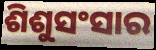
ଶିଶୁସଂସାର